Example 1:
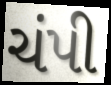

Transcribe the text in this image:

ચંપી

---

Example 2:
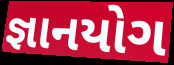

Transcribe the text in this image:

જ્ઞાનયોગ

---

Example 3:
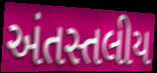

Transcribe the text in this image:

અંતસ્તલીય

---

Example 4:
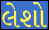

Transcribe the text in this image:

લેશો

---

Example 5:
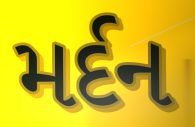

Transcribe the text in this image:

મર્દન